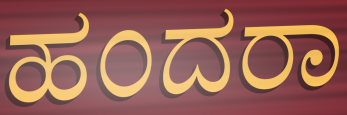
ಹಂದರಾ